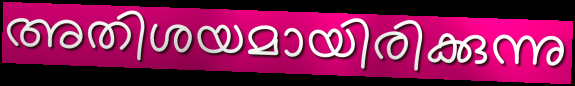
അതിശയമായിരിക്കുന്നു